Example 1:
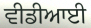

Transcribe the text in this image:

ਵੀਡੀਆਈ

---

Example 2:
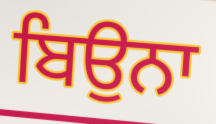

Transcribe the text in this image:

ਬਿਉਨਾ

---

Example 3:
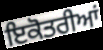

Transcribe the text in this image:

ਇਕੋਤਰੀਆਂ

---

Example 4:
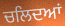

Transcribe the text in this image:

ਚਲਿਦਆਂ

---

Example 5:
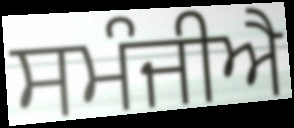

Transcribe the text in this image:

ਸਮੰਜੀਐ